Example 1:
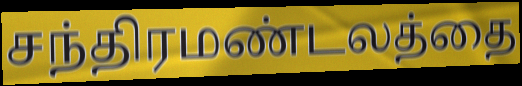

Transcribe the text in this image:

சந்திரமண்டலத்தை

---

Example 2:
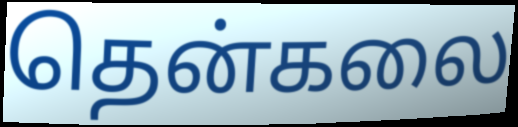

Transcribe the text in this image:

தென்கலை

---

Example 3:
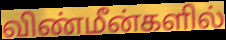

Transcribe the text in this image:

விண்மீன்களில்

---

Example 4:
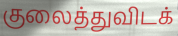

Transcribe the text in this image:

குலைத்துவிடக்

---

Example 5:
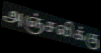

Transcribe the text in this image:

அஞ்சலிக்கு